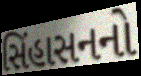
સિંહાસનનો